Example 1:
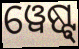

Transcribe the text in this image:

ୱେଷ୍ଟ୍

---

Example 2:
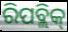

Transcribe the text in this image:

ରିପବ୍ଲିକ୍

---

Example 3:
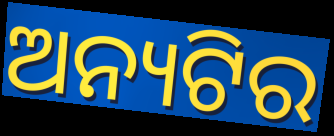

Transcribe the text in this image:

ଅନ୍ୟଟିର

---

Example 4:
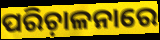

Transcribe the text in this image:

ପରିଚ଼ାଳନାରେ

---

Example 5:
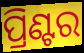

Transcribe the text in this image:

ପ୍ରିଣ୍ଟର